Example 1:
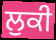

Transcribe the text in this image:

ਲੁਕੀ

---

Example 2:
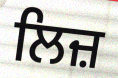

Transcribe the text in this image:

ਲਿਜ਼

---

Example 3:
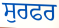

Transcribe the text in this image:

ਸੁਰਫਰ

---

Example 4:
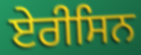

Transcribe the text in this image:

ਏਰੀਸਿਨ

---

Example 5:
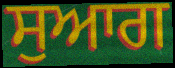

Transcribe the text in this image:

ਸੁਆਗ